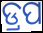
ଡ୍ରପ